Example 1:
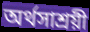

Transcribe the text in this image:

অর্থসাশ্রয়ী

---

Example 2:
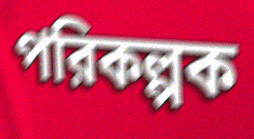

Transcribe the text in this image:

পরিকল্পক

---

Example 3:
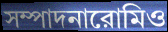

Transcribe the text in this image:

সম্পাদনারোমিও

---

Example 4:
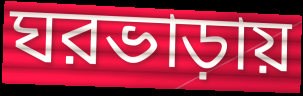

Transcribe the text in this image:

ঘরভাড়ায়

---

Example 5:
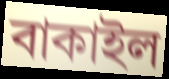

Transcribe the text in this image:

বাকাইল